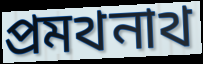
প্রমথনাথ